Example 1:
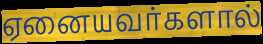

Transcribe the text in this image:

ஏனையவர்களால்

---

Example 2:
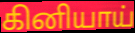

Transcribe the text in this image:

கினியாய்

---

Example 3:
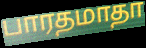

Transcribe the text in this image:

பாரதமாதா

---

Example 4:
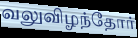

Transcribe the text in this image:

வலுவிழந்தோர்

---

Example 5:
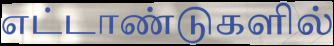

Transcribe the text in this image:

எட்டாண்டுகளில்